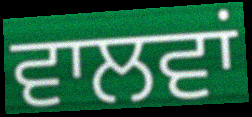
ਵਾਲਵਾਂ